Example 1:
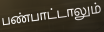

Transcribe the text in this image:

பண்பாட்டாலும்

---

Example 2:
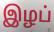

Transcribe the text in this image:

இழப்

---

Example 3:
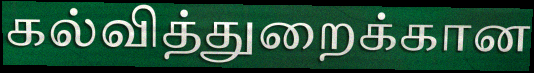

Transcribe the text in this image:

கல்வித்துறைக்கான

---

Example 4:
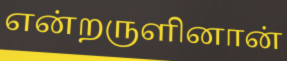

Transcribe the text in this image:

என்றருளினான்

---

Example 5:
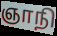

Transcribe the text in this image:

ஞாநி